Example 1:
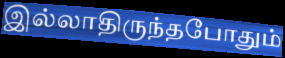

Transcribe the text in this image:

இல்லாதிருந்தபோதும்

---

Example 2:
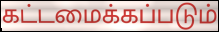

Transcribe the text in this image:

கட்டமைக்கப்படும்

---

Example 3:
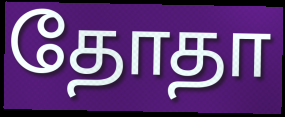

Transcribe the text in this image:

தோதா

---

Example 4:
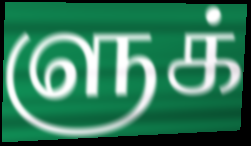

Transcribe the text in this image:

ளுக்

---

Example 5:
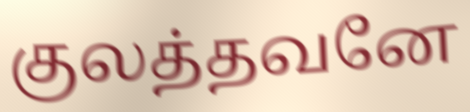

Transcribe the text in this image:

குலத்தவனே